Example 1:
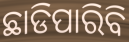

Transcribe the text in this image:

ଛାଡିପାରିବି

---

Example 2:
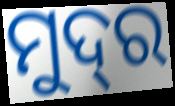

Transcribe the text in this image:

ମୁଦ୍‌ର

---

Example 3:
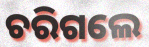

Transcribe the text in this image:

ଚରିଗଲେ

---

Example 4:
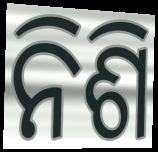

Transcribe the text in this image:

ନିଶି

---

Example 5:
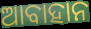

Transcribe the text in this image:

ଆବାହାନ